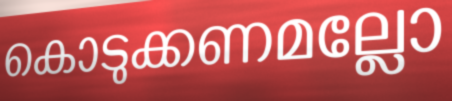
കൊടുക്കണമല്ലോ